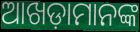
ଆଖଡ଼ାମାନଙ୍କ